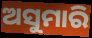
ଅସୁମାରି